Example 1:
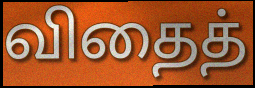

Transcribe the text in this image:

விதைத்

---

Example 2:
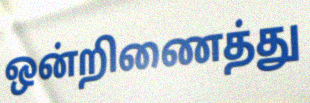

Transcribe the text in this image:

ஒன்றிணைத்து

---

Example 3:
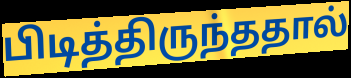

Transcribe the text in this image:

பிடித்திருந்ததால்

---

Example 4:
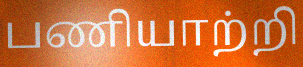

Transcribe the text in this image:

பணியாற்றி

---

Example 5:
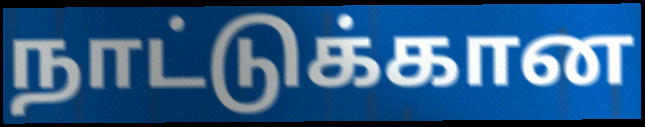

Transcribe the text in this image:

நாட்டுக்கான